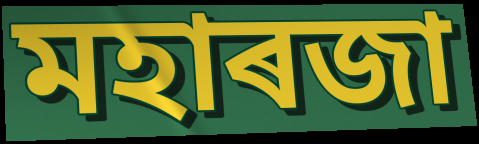
মহাৰজা